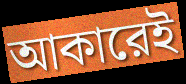
আকারেই